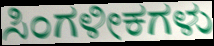
ಸಿಂಗಳೀಕಗಳು